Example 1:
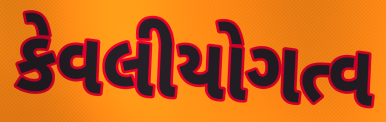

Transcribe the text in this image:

કેવલીયોગત્વ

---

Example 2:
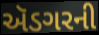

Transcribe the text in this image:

ઍડગરની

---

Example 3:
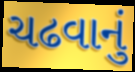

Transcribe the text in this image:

ચઢવાનું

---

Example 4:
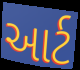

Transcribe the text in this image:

આર્ટ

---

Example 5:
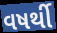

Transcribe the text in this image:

વષર્થી